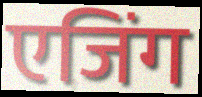
एजिंग